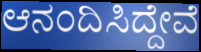
ಆನಂದಿಸಿದ್ದೇವೆ